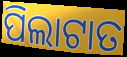
ପିଲାଟାତ